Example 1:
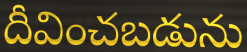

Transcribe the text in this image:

దీవించబడును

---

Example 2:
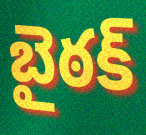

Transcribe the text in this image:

బైఠక్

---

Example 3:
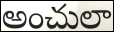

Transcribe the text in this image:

అంచులా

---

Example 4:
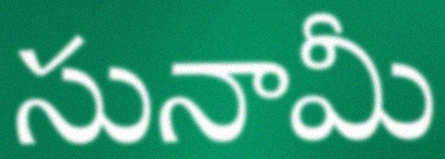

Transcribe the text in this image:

సునామీ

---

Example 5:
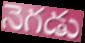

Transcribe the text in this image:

నెగడు